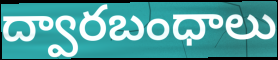
ద్వారబంధాలు